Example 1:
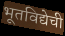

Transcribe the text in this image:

भूतविद्येची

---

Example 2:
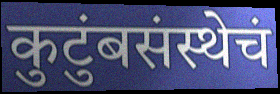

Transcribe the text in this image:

कुटुंबसंस्थेचं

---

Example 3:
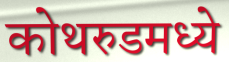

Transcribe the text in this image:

कोथरुडमध्ये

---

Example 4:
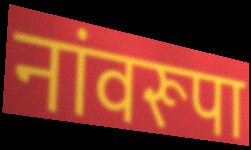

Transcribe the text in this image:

नांवरूपा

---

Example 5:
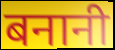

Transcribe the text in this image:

बनानी